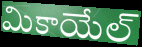
మికాయేల్